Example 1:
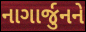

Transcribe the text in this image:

નાગાર્જુનને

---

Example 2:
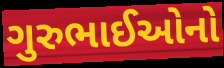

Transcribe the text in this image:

ગુરુભાઈઓનો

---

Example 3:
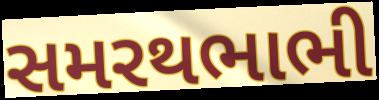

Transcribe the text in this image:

સમરથભાભી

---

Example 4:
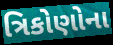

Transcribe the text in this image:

ત્રિકોણોના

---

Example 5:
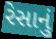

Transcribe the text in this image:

રેસાનું